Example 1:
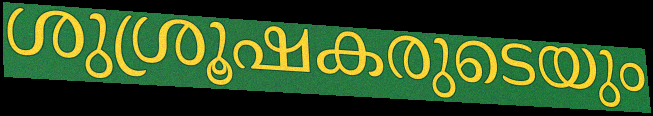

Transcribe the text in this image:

ശുശ്രൂഷകരുടെയും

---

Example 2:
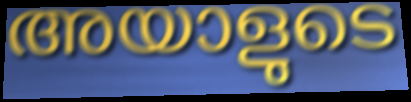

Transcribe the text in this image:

അയാളുടെ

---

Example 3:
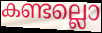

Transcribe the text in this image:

കണ്ടല്ലൊ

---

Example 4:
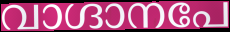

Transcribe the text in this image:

വാഗ്ദാനപേ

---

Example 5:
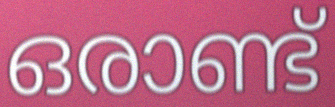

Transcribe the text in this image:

ഒരാണ്ട്